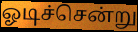
ஓடிச்சென்று